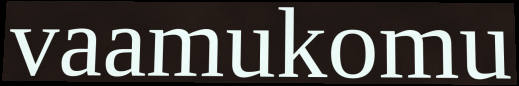
vaamukomu